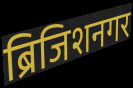
ब्रिजिशनगर